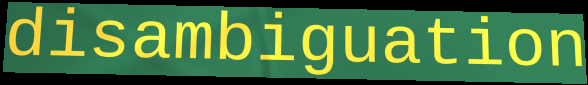
disambiguation